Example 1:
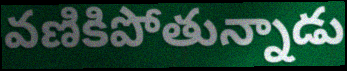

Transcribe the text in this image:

వణికిపోతున్నాడు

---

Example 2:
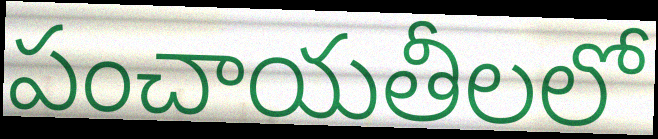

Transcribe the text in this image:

పంచాయతీలలో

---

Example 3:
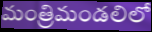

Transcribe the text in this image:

మంత్రిమండలిలో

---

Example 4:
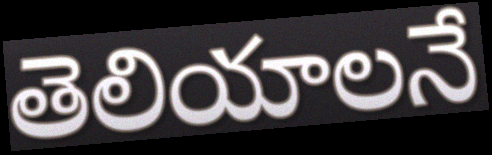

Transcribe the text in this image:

తెలియాలనే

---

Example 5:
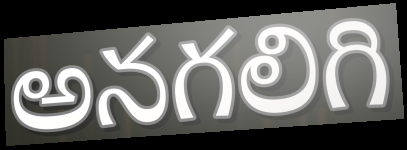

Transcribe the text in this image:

అనగలిగి